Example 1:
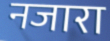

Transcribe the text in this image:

नजारा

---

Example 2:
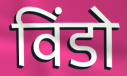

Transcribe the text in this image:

विंडो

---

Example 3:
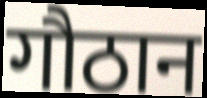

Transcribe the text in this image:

गौठान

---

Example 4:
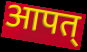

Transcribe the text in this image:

आपत्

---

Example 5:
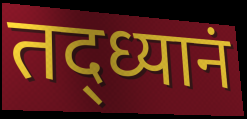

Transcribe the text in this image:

तद्ध्यानं